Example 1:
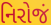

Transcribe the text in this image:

નિરોજં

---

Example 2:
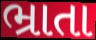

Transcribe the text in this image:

ભ્રાતા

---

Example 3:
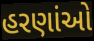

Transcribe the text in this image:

હરણાંઓ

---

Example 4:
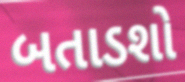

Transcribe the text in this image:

બતાડશો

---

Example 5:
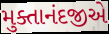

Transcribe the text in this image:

મુક્તાનંદજીએ